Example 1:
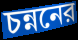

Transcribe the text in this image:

চন্ননের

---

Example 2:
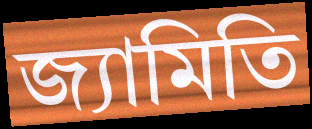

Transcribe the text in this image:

জ্যামিতি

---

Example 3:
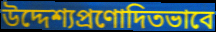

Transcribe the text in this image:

উদ্দেশ্যপ্রণোদিতভাবে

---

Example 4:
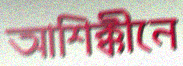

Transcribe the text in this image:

আশিক্কীনে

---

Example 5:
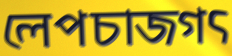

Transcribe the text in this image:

লেপচাজগৎ